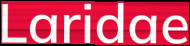
Laridae